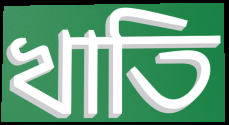
খাতি